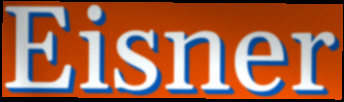
Eisner